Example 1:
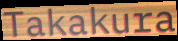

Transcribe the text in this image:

Takakura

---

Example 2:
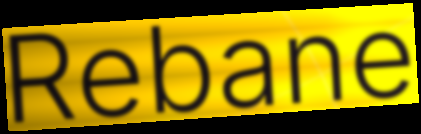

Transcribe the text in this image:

Rebane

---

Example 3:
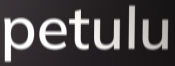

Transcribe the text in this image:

petulu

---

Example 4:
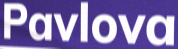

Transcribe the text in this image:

Pavlova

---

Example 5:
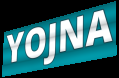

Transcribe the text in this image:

YOJNA